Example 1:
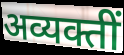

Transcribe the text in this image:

अव्यक्तीं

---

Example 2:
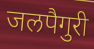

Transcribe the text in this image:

जलपैगुरी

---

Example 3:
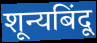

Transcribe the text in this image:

शून्यबिंदू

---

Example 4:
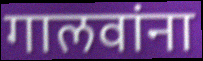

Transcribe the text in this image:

गालवांना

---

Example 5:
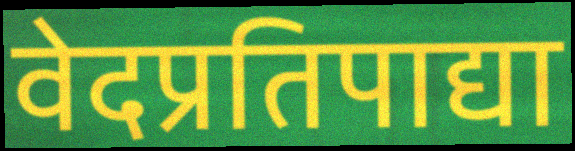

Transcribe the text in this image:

वेदप्रतिपाद्या